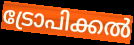
ട്രോപിക്കൽ